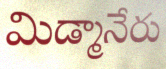
మిడ్మానేరు